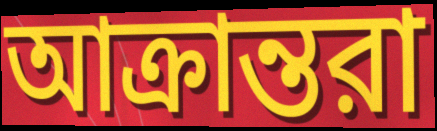
আক্রান্তরা